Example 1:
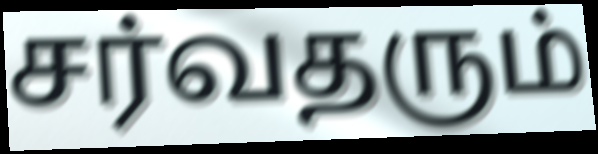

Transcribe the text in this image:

சர்வதரும்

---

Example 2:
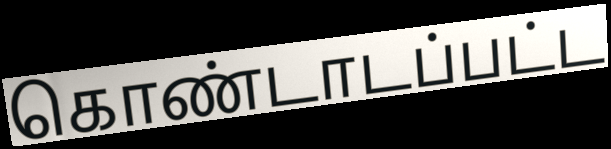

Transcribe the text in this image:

கொண்டாடப்பட்ட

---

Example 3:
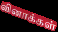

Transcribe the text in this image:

வினாக்கள்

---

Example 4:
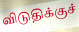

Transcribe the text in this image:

விடுதிக்குச்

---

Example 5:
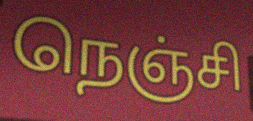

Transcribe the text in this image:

நெஞ்சி